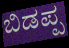
ಬಿಡಪ್ಪ